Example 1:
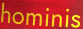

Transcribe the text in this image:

hominis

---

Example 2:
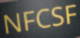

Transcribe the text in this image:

NFCSF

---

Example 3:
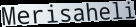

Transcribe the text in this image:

Merisaheli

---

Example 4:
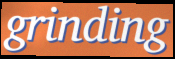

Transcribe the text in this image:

grinding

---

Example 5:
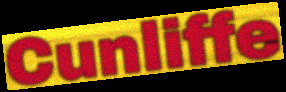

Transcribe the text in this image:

Cunliffe